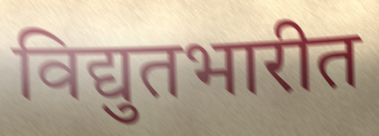
विद्युतभारीत